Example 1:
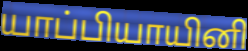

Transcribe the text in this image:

யாப்பியாயினி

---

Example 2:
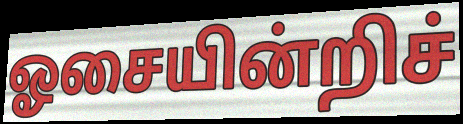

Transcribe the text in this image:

ஓசையின்றிச்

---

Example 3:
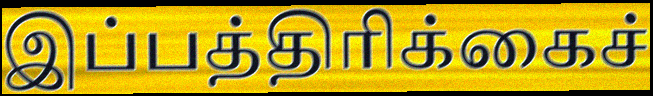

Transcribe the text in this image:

இப்பத்திரிக்கைச்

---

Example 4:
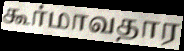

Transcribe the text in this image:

கூர்மாவதார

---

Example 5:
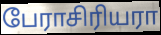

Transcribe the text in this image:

பேராசிரியரா